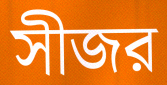
সীজর